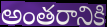
అంతరానికి